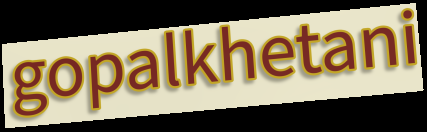
gopalkhetani